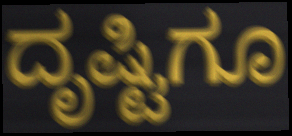
ದೃಷ್ಟಿಗೂ